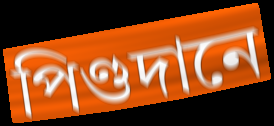
পিণ্ডদানে